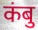
कंबु